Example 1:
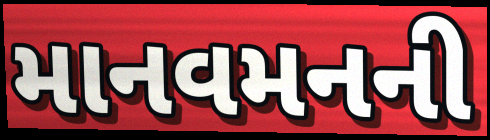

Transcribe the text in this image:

માનવમનની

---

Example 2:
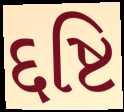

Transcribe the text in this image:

દ્દષ્ટિ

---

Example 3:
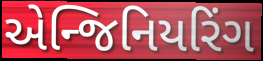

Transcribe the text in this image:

એન્જિનિયરિંગ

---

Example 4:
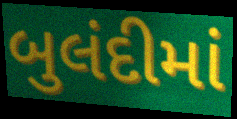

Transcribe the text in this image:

બુલંદીમાં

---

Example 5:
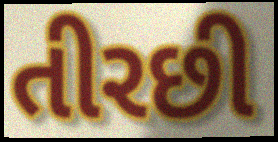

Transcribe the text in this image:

તીરછી